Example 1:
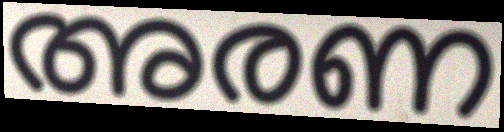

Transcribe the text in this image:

അരണ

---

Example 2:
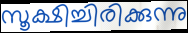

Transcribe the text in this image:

സൂക്ഷിച്ചിരിക്കുന്നു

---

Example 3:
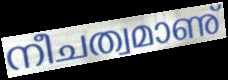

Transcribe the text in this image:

നീചത്വമാണു്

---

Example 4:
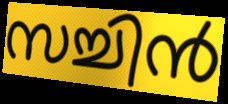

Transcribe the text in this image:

സച്ചിൻ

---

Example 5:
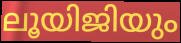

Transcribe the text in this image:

ലൂയിജിയും